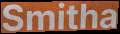
Smitha